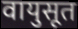
वायुसूत